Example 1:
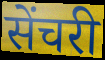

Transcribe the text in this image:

सेंचरी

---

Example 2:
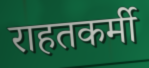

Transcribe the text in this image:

राहतकर्मी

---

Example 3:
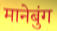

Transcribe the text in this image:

मानेबुंग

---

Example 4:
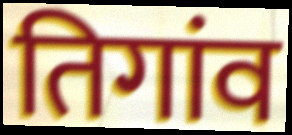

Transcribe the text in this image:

तिगांव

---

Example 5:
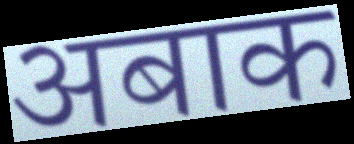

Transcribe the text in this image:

अबाक